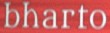
bharto